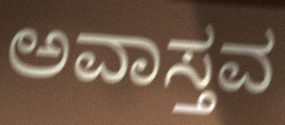
ಅವಾಸ್ತವ